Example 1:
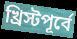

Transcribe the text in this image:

খ্রিস্টপূর্বে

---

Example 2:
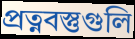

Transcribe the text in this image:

প্রত্নবস্তুগুলি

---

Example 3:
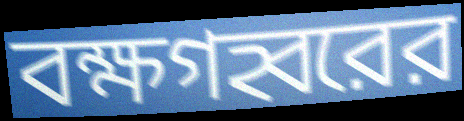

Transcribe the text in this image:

বক্ষগহ্বরের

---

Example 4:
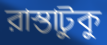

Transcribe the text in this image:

রাস্তাটুকু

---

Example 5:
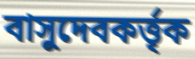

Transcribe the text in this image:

বাসুদেবকর্ত্তৃক